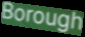
Borough